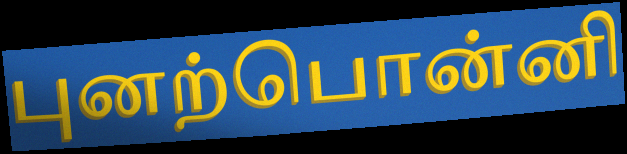
புனற்பொன்னி